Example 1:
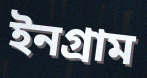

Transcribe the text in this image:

ইনগ্রাম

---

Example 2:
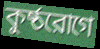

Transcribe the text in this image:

কুষ্ঠরোগে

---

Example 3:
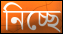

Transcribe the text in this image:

নিচ্ছে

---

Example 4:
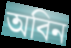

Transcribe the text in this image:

অবিন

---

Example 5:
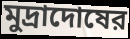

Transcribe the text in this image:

মুদ্রাদোষের